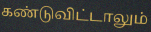
கண்டுவிட்டாலும்